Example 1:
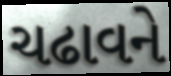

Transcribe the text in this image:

ચઢાવને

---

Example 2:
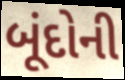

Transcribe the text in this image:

બૂંદોની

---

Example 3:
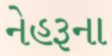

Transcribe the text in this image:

નેહરૂના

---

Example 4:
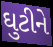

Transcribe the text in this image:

ઘુટીને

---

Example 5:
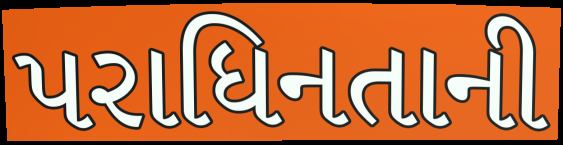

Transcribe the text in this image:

પરાધિનતાની